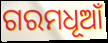
ଗରମଧୂଆଁ